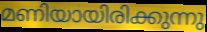
മണിയായിരിക്കുന്നു